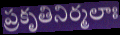
ప్రకృతినిర్మలాః